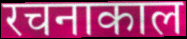
रचनाकाल